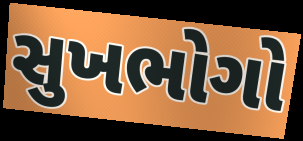
સુખભોગો